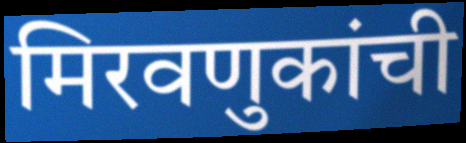
मिरवणुकांची